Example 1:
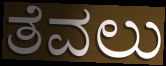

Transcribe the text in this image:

ತೆವಲು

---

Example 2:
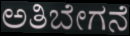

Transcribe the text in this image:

ಅತಿಬೇಗನೆ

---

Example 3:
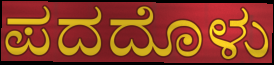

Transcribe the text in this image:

ಪದದೊಳು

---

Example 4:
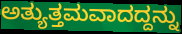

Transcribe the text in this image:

ಅತ್ಯುತ್ತಮವಾದದ್ದನ್ನು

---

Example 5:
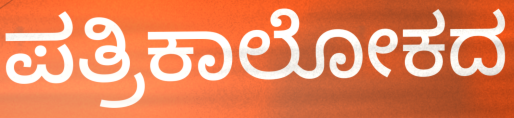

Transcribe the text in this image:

ಪತ್ರಿಕಾಲೋಕದ